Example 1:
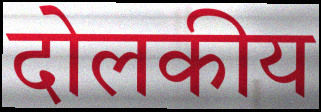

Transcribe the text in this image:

दोलकीय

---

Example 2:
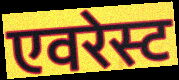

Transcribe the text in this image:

एवरेस्ट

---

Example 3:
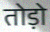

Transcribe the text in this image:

तोड़ो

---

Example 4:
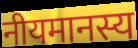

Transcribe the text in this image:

नीयमानस्य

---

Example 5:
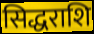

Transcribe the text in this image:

सिद्धराशि